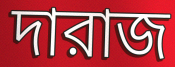
দারাজ